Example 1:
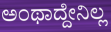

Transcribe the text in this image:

ಅಂಥಾದ್ದೇನಿಲ್ಲ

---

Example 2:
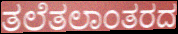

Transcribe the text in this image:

ತಲೆತಲಾಂತರದ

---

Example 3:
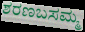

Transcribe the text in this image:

ಶರಣಬಸಮ್ಮ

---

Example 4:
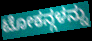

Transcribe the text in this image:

ಟೋಕನ್ಗಳನ್ನು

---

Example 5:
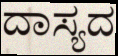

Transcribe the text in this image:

ದಾಸ್ಯದ